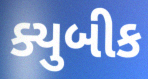
ક્યુબીક